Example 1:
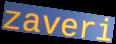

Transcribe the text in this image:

zaveri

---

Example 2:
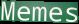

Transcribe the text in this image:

Memes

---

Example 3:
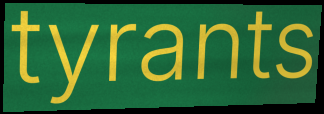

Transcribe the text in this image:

tyrants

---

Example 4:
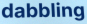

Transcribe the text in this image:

dabbling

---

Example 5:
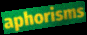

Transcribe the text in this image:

aphorisms